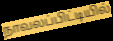
நாவலப்பிட்டியில்